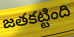
జతకట్టింది